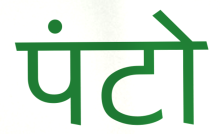
पंटो